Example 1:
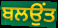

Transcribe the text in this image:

ਬਲਉਂਤ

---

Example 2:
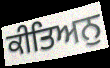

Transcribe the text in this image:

ਕੀਤਿਅਨੁ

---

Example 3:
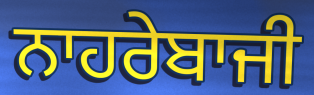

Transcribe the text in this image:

ਨਾਹਰੇਬਾਜੀ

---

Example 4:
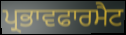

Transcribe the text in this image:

ਪ੍ਰਭਾਵਫਾਰਮੈਟ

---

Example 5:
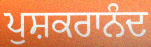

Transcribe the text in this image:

ਪੁਸ਼ਕਰਾਨੰਦ